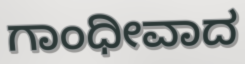
ಗಾಂಧೀವಾದ